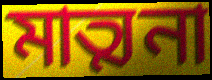
মাত্মনা